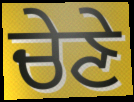
ਚੇਣੇ